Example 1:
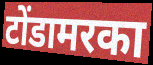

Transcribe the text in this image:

टोंडामरका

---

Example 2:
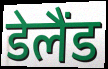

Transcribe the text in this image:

डेलैंड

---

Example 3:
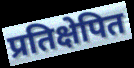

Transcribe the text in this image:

प्रतिक्षेपित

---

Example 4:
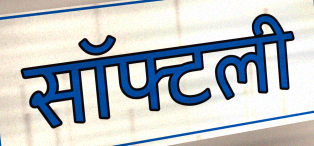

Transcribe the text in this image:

सॉफ्टली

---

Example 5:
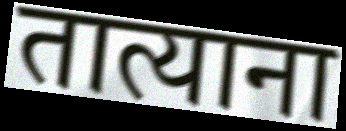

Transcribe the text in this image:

तात्याना